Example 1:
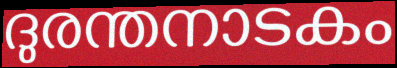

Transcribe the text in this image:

ദുരന്തനാടകം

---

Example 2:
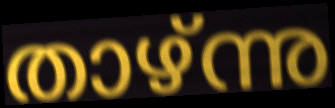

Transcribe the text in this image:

താഴ്ന്നു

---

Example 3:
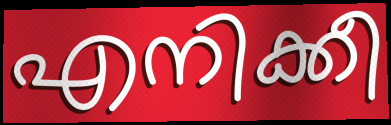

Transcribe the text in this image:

എനിക്കീ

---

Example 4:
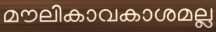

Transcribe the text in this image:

മൗലികാവകാശമല്ല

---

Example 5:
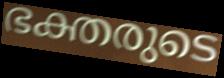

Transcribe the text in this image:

ഭക്തരുടെ